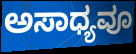
ಅಸಾಧ್ಯವೂ